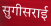
सुगीसराई